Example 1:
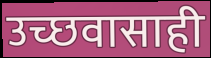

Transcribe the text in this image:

उच्छवासाही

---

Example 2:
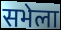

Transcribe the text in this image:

सभेला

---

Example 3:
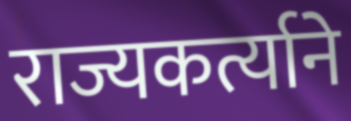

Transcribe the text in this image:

राज्यकर्त्याने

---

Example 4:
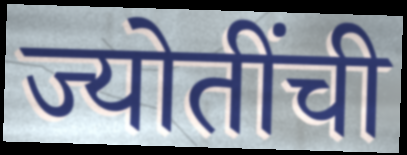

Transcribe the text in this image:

ज्योतींची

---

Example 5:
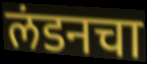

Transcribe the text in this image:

लंडनचा